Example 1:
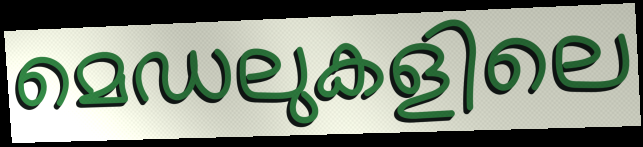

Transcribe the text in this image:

മെഡലുകളിലെ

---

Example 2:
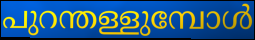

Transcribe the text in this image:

പുറന്തള്ളുമ്പോൾ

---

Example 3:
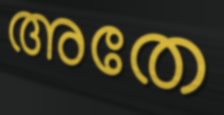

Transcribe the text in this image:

അതേ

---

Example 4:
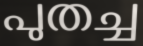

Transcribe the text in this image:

പുതച്ച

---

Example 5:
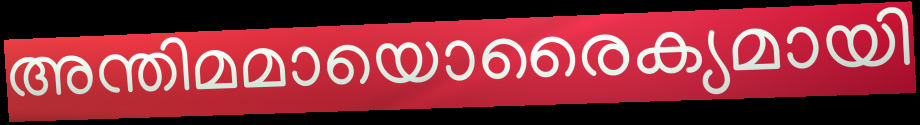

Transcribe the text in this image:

അന്തിമമായൊരൈക്യമായി